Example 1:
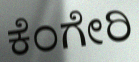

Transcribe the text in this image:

ಕೆಂಗೇರಿ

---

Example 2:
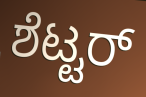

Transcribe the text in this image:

ಶೆಟ್ಟರ್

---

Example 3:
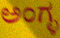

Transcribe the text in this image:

ಅಂಗ್ಳ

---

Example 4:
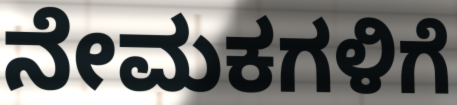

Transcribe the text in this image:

ನೇಮಕಗಳಿಗೆ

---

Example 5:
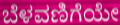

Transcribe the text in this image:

ಬೆಳವಣಿಗೆಯೇ